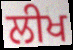
ਲੀਖ